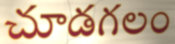
చూడగలం